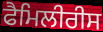
ਫੈਮਿਲੀਰੀਸ